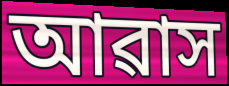
আৱাস